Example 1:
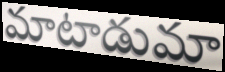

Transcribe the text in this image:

మాటాడుమా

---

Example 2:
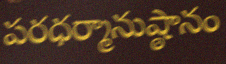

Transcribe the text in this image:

పరధర్మానుష్ఠానం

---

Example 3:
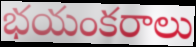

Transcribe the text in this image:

భయంకరాలు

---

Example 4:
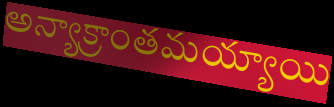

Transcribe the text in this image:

అన్యాక్రాంతమయ్యాయి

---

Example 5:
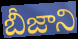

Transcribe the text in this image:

బీజాని